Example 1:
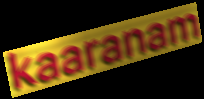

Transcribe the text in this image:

kaaranam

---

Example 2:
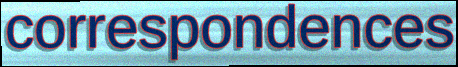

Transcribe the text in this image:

correspondences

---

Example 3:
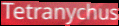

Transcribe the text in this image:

Tetranychus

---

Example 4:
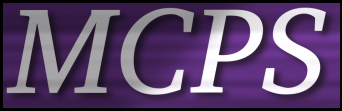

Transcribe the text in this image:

MCPS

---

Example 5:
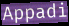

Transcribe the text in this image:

Appadi